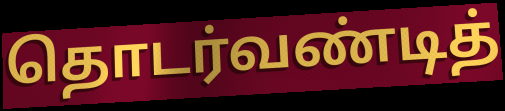
தொடர்வண்டித்